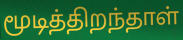
மூடித்திறந்தாள்